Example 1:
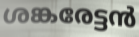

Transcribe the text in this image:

ശങ്കരേട്ടൻ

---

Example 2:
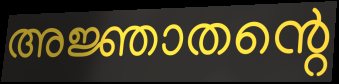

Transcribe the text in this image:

അജ്ഞാതന്റെ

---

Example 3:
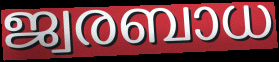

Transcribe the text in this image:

ജ്വരബാധ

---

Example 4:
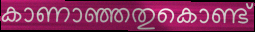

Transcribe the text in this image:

കാണാഞ്ഞതുകൊണ്ട്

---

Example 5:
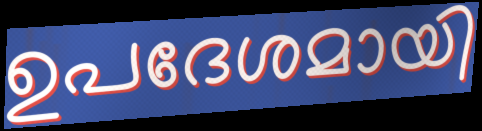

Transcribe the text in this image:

ഉപദേശമായി